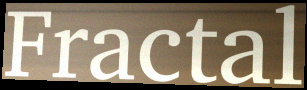
Fractal